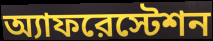
অ্যাফরেস্টেশন